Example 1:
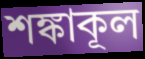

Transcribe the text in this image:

শঙ্কাকূল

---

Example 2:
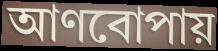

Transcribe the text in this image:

আণবোপায়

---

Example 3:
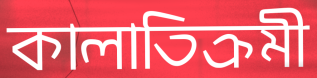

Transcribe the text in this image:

কালাতিক্রমী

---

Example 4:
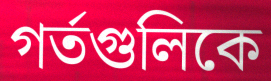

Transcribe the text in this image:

গর্তগুলিকে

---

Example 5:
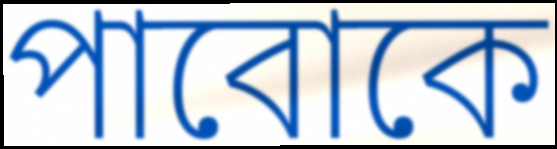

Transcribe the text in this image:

পাবোকে